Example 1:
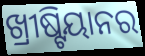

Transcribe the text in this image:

ଖ୍ରୀଷ୍ଟିୟାନର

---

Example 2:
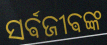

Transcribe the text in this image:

ସର୍ଵଜୀଵଙ୍କ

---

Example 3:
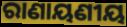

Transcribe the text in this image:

ରାଣାୟଣୀୟ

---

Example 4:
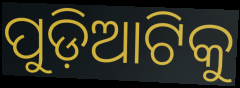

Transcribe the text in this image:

ପୁଡ଼ିଆଟିକୁ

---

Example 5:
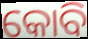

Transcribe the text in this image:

କୋବି